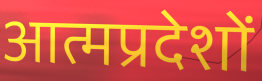
आत्मप्रदेशों